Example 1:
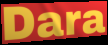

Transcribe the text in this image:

Dara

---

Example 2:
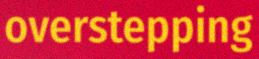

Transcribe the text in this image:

overstepping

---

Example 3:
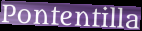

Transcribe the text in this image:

Pontentilla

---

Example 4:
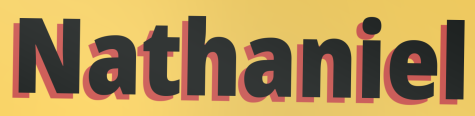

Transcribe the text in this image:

Nathaniel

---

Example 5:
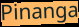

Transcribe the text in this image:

Pinanga